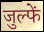
जुल्फें